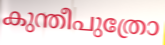
കുന്തീപുത്രോ